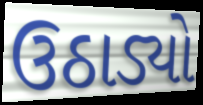
ઉઠાડ્યો